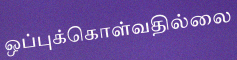
ஒப்புக்கொள்வதில்லை